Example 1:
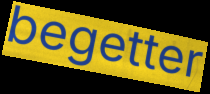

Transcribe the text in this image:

begetter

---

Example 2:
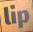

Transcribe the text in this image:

lip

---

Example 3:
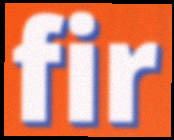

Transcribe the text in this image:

fir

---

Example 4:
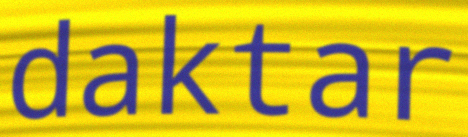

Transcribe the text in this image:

daktar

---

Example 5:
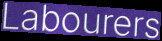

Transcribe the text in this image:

Labourers